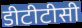
डीटीटीसी